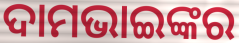
ଦାମଭାଇଙ୍କର